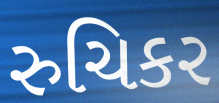
રુચિકર